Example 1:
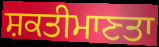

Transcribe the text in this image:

ਸ਼ਕਤੀਮਾਣਤਾ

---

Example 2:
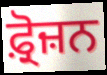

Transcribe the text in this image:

ਫ਼੍ਰੋਜ਼ਨ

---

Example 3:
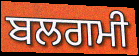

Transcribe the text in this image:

ਬਲਗਮੀ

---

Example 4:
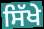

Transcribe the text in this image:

ਸਿੱਖੇ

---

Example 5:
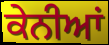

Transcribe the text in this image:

ਕੇਨੀਆਂ